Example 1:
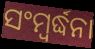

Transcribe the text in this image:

ସଂମ୍ବର୍ଦ୍ଧନା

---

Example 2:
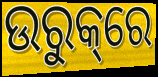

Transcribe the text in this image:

ଉରୁକ୍‌ରେ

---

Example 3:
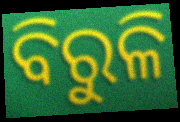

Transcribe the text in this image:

ବିରୁଳି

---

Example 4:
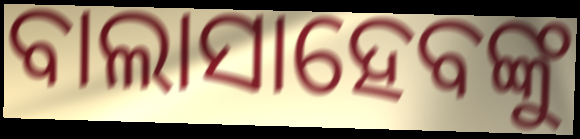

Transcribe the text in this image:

ବାଲାସାହେବଙ୍କୁ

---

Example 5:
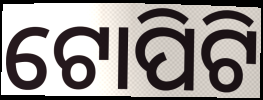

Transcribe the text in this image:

ଟୋପିଟି